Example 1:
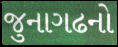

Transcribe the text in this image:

જુનાગઢનો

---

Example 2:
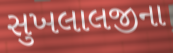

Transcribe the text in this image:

સુખલાલજીના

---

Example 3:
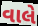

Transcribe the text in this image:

વાલે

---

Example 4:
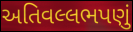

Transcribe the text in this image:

અતિવલ્લભપણું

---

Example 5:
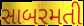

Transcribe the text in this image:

સાબરમતી